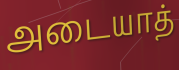
அடையாத்